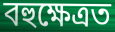
বহুক্ষেত্ৰত